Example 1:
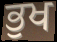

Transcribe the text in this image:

ਭੁਖ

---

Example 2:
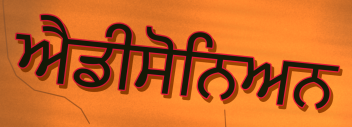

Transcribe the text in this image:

ਐਡੀਸੋਨਿਅਨ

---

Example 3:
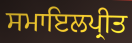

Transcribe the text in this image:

ਸਮਾਇਲਪ੍ਰੀਤ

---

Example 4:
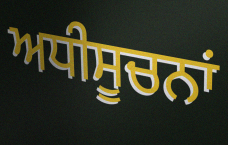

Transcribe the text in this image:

ਅਧੀਸੂਚਨਾਂ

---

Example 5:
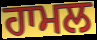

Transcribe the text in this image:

ਹਾਮਲ